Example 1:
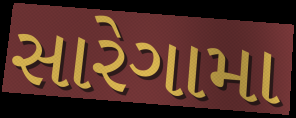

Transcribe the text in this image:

સારેગામા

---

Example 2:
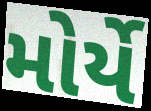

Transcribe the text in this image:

મોર્યે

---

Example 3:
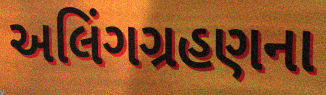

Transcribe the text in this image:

અલિંગગ્રહણના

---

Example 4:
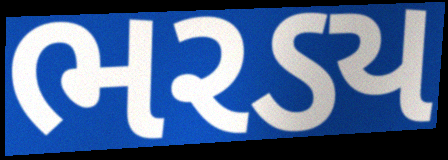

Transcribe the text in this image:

ભરડ્ય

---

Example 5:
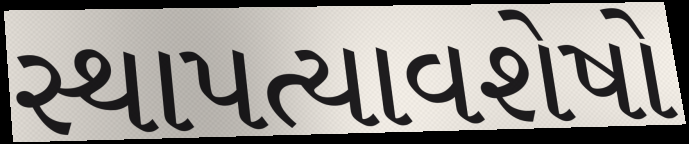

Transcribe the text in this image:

સ્થાપત્યાવશેષો